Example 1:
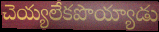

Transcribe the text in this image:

చెయ్యలేకపొయ్యాడు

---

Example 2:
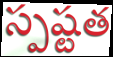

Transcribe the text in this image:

స్పష్టత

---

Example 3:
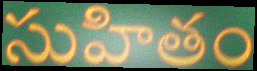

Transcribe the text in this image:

సుహితం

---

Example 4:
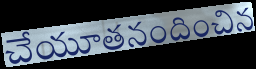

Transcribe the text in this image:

చేయూతనందించిన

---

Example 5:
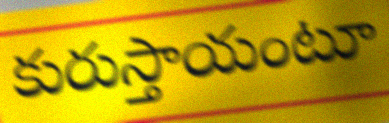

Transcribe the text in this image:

కురుస్తాయంటూ